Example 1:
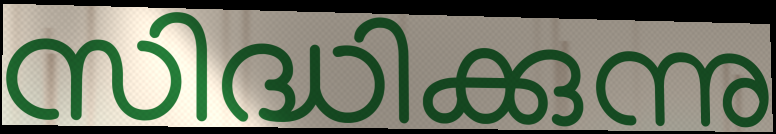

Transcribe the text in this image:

സിദ്ധിക്കുന്നു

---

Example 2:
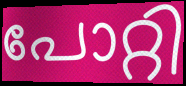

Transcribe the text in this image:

പോറ്റി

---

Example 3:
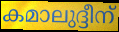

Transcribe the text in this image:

കമാലുദ്ദീന്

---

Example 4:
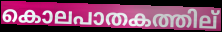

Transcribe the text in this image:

കൊലപാതകത്തില്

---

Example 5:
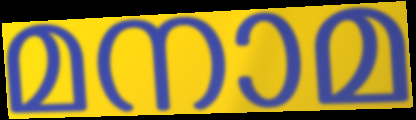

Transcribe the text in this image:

മനാമ